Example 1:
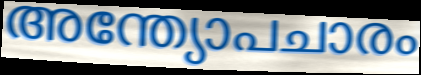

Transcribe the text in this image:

അന്ത്യോപചാരം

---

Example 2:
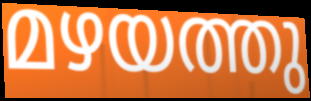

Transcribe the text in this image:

മഴയത്തു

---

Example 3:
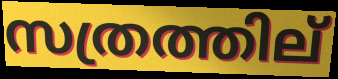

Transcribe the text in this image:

സത്രത്തില്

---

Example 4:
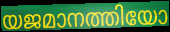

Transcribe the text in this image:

യജമാനത്തിയോ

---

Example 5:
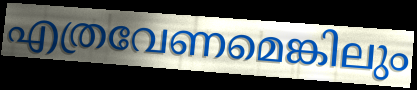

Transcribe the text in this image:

എത്രവേണമെങ്കിലും